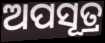
ଅପସୂତ୍ର